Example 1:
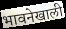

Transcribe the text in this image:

भावनेखाली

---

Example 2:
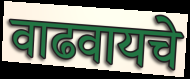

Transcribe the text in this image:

वाढवायचे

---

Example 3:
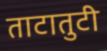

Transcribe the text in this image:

ताटातुटी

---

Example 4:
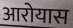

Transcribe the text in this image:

आरोयास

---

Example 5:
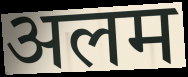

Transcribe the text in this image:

अलम